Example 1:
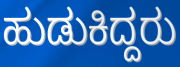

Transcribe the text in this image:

ಹುಡುಕಿದ್ದರು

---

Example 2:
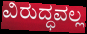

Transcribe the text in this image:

ವಿರುದ್ಧವಲ್ಲ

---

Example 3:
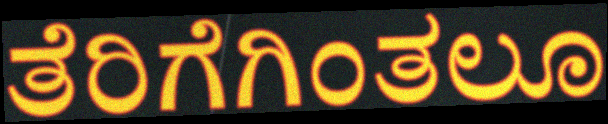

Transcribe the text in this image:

ತೆರಿಗೆಗಿಂತಲೂ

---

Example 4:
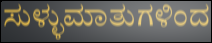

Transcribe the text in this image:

ಸುಳ್ಳುಮಾತುಗಳಿಂದ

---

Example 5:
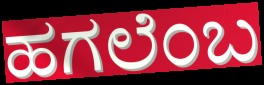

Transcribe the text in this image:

ಹಗಲೆಂಬ